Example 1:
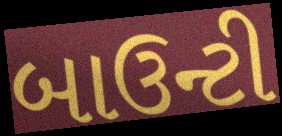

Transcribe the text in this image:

બાઉન્ટી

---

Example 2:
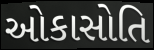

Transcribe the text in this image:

ઓકાસોતિ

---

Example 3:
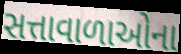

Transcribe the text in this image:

સત્તાવાળાઓના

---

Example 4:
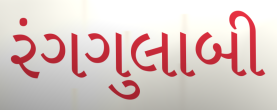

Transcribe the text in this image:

રંગગુલાબી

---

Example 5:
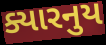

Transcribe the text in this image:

ક્યારનુય